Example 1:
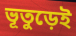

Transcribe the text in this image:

ভূতুড়েই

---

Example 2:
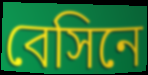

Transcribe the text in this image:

বেসিনে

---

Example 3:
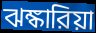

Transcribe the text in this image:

ঝঙ্কারিয়া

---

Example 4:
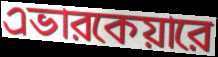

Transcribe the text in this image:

এভারকেয়ারে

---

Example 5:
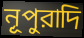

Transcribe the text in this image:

নূপুরাদি